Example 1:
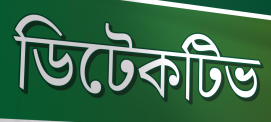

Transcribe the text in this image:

ডিটেকটিভ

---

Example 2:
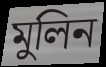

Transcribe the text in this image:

মুলিন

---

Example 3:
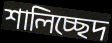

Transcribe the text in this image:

শালিচ্ছেদ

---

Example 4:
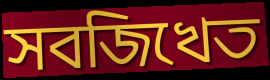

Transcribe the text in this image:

সবজিখেত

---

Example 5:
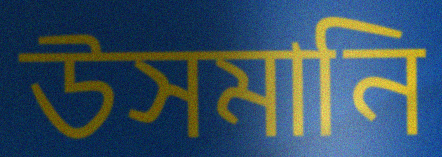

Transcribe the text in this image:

উসমানি